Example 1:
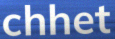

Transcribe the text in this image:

chhet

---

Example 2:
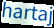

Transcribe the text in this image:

hartaj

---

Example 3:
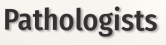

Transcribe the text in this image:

Pathologists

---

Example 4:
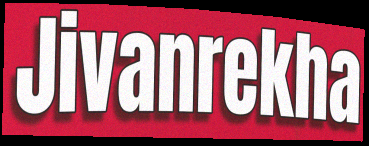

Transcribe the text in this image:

Jivanrekha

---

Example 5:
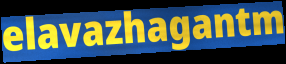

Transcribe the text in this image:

elavazhagantm